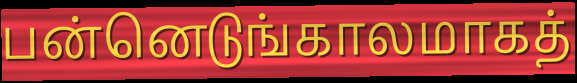
பன்னெடுங்காலமாகத்